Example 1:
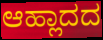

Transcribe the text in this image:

ಆಹ್ಲಾದದ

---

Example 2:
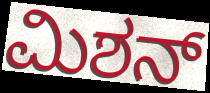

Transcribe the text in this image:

ಮಿಶನ್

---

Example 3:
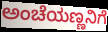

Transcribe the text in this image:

ಅಂಚೆಯಣ್ಣನಿಗೆ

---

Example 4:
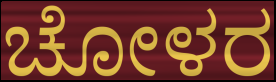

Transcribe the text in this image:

ಚೋಳರ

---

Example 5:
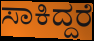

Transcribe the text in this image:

ಸಾಕಿದ್ದರೆ